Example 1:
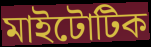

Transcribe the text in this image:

মাইটোটিক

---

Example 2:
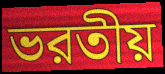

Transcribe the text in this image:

ভরতীয়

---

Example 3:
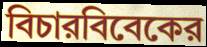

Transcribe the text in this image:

বিচারবিবেকের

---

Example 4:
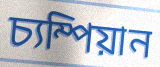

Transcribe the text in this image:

চ্যম্পিয়ান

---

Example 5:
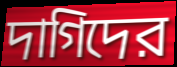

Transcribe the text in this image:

দাগিদের